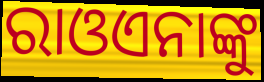
ରାଓଏନାଙ୍କୁ